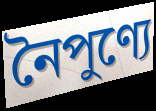
নৈপুণ্যে